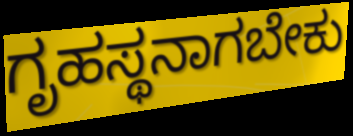
ಗೃಹಸ್ಥನಾಗಬೇಕು